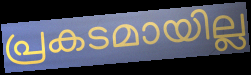
പ്രകടമായില്ല